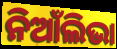
ନିଆଁଲିଭା